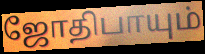
ஜோதிபாயும்